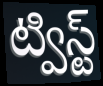
ట్విస్ట్